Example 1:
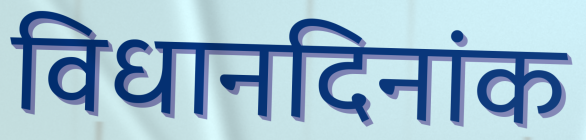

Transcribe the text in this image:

विधानदिनांक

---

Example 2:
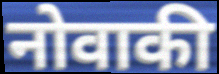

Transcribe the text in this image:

नोवाकी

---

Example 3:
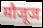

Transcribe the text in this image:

मौजूज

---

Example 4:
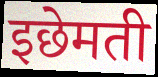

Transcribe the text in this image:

इछेमती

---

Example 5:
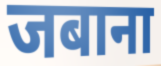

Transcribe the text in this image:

जबाना